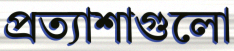
প্রত্যাশাগুলো